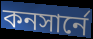
কনসার্নে